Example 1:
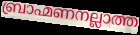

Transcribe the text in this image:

ബ്രാഹ്മണനല്ലാത്ത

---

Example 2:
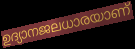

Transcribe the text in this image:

ഉദ്യാനജലധാരയാണ്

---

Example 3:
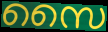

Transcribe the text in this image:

സൈ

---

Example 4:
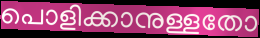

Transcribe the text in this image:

പൊളിക്കാനുള്ളതോ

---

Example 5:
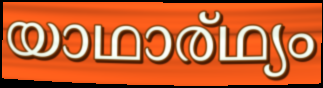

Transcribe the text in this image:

യാഥാര്ഥ്യം